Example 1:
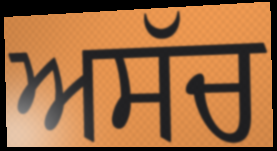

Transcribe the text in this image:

ਅਸੱਚ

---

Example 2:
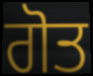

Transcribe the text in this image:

ਗੋਤ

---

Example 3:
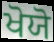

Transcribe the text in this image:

ਖੋਯੋ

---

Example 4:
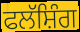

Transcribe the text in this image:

ਫਲੱਸ਼ਿੰਗ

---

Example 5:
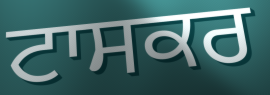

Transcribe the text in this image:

ਟਾਸਕਰ